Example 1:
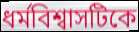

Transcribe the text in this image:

ধর্মবিশ্বাসটিকে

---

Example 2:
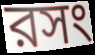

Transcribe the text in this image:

রসং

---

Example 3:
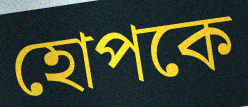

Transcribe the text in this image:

হোপকে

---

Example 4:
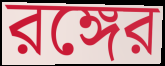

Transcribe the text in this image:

রঙ্গের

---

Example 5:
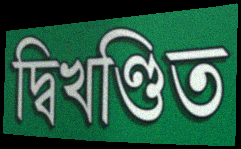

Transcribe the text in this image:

দ্বিখণ্ডিত